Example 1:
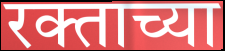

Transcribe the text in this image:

रक्ताच्या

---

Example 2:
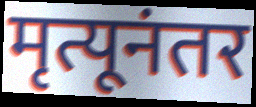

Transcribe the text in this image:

मृत्यूनंतर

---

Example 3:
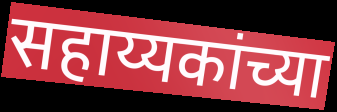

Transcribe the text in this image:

सहाय्यकांच्या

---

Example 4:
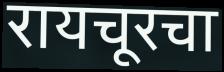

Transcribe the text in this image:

रायचूरचा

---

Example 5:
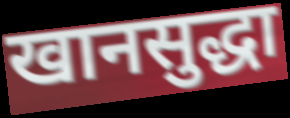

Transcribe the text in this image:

खानसुद्धा